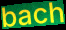
bach